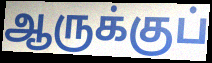
ஆருக்குப்